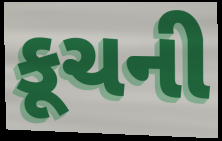
કૂચની